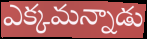
ఎక్కమన్నాడు